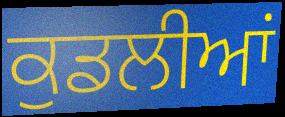
ਕੁਡਲੀਆਂ